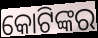
କୋଟିଙ୍କର